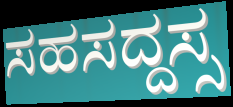
ಸಹಸದ್ದಸ್ಸ